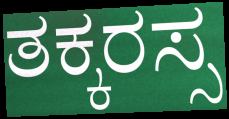
ತಕ್ಕರಸ್ಸ